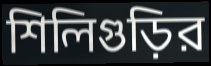
শিলিগুড়ির